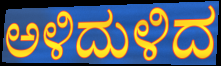
ಅಳಿದುಳಿದ